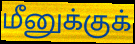
மீனுக்குக்